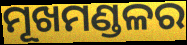
ମୂଖମଣ୍ଡଳର